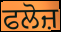
ਫਲੋਜ਼